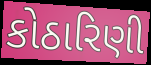
કોઠારિણી